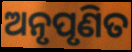
ଅନୃପୃଣିତ